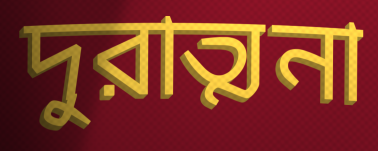
দুরাত্মনা